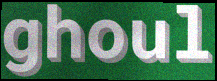
ghoul